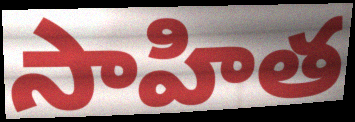
సాహిత